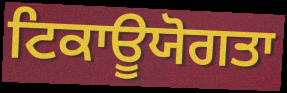
ਟਿਕਾਊਯੋਗਤਾ